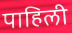
पाहिली